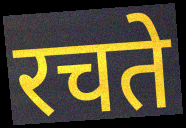
रचते